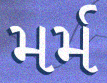
મર્મ